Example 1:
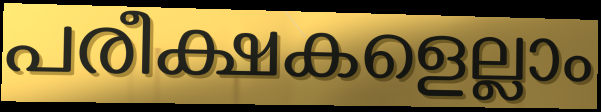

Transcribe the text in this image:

പരീക്ഷകളെല്ലാം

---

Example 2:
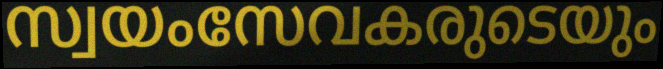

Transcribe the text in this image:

സ്വയംസേവകരുടെയും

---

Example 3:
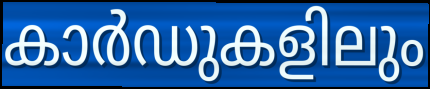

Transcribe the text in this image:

കാർഡുകളിലും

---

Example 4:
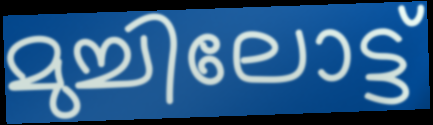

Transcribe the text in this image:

മുച്ചിലോട്ട്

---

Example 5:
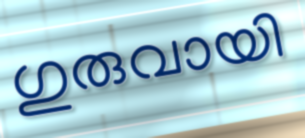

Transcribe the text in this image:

ഗുരുവായി